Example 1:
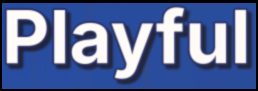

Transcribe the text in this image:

Playful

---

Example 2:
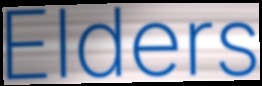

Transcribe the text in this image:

Elders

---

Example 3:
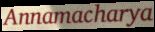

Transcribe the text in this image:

Annamacharya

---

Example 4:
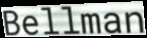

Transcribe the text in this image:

Bellman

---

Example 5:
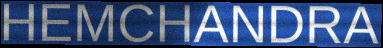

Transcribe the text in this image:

HEMCHANDRA